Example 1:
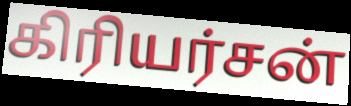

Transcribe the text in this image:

கிரியர்சன்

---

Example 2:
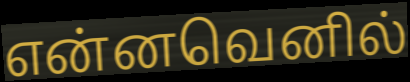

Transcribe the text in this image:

என்னவெனில்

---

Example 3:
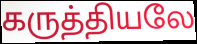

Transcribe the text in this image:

கருத்தியலே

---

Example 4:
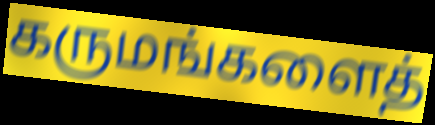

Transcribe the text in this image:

கருமங்களைத்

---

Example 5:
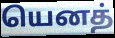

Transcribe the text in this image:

யெனத்